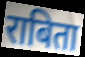
राबिता